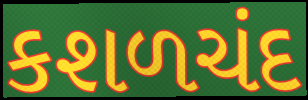
કશળચંદ